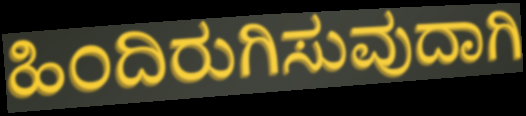
ಹಿಂದಿರುಗಿಸುವುದಾಗಿ